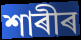
শাৰীৰ